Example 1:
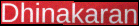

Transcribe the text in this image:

Dhinakaran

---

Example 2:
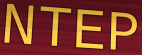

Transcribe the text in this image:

NTEP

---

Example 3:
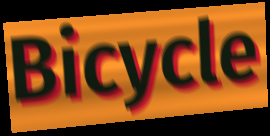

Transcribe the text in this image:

Bicycle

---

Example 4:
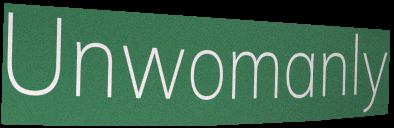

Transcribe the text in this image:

Unwomanly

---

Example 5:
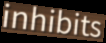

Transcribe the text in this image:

inhibits